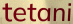
tetani